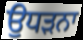
ਉਧੜਨਾ